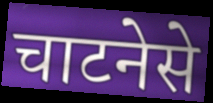
चाटनेसे